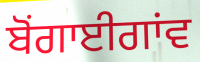
ਬੋਂਗਾਈਗਾਂਵ